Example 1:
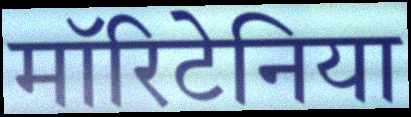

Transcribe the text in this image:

मॉरिटेनिया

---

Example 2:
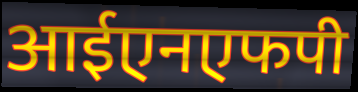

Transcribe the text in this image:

आईएनएफपी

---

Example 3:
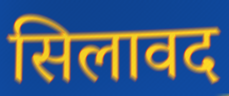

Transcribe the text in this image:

सिलावद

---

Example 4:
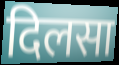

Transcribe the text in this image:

दिलसा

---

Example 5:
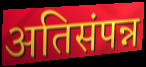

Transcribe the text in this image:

अतिसंपन्न